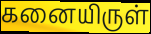
கனையிருள்